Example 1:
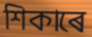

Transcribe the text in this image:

শিকাৰে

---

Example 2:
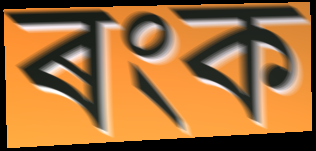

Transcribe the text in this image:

ৰংক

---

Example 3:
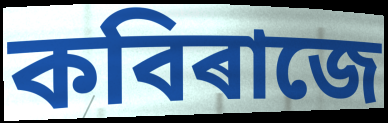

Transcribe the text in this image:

কবিৰাজে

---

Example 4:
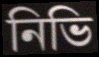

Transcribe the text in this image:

নিভি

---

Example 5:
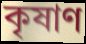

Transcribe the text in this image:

কৃষাণ